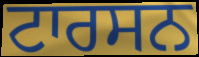
ਟਾਰਸਨ